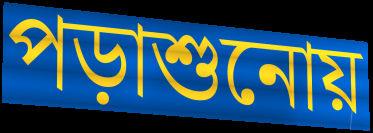
পড়াশুনোয়